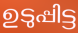
ഉടുപ്പിട്ട